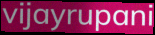
vijayrupani